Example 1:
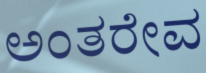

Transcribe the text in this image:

ಅಂತರೇವ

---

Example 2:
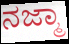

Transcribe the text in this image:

ನಜ್ಮಾ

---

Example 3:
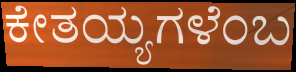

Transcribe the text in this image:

ಕೇತಯ್ಯಗಳೆಂಬ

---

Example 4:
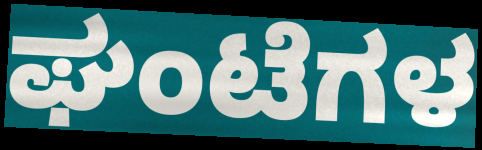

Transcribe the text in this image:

ಘಂಟೆಗಳ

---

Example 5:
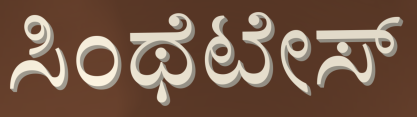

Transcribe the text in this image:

ಸಿಂಥೆಟೇಸ್